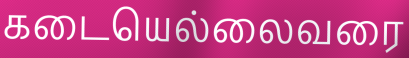
கடையெல்லைவரை